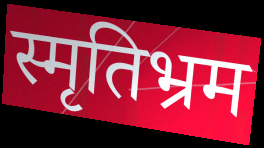
स्मृतिभ्रम